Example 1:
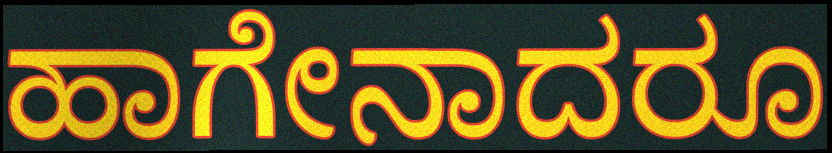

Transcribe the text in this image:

ಹಾಗೇನಾದರೂ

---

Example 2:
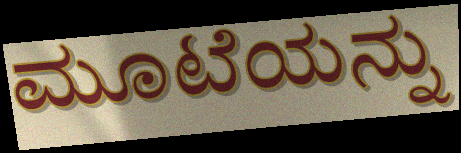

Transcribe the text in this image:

ಮೂಟೆಯನ್ನು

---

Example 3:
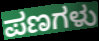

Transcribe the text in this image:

ಪಣಗಳು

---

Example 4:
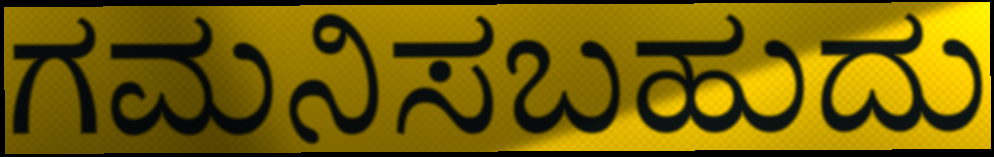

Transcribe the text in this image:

ಗಮನಿಸಬಹುದು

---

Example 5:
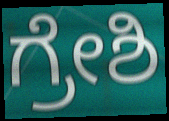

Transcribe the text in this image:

ಗ್ರೇಶಿ